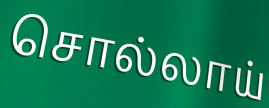
சொல்லாய்